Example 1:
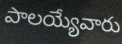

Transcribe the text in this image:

పాలయ్యేవారు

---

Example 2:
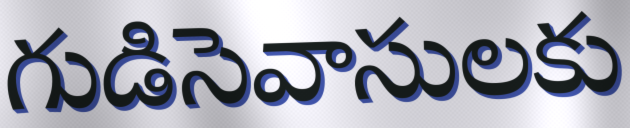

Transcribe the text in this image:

గుడిసెవాసులకు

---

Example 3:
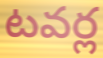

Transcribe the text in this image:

టవర్ల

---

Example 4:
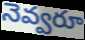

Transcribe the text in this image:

నెవ్వరూ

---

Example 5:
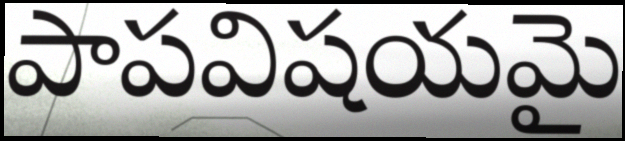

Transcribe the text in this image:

పాపవిషయమై